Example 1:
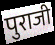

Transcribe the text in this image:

पुराजी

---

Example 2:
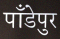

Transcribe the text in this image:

पाँडेपुर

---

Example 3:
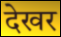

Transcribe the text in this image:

देखर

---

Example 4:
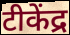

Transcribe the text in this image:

टीकेंद्र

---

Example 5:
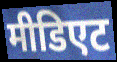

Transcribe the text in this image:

मीडिएट